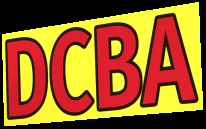
DCBA